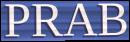
PRAB